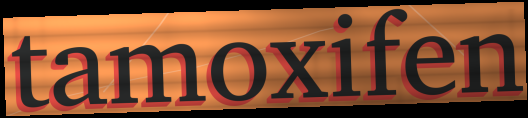
tamoxifen